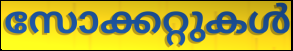
സോക്കറ്റുകൾ